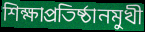
শিক্ষাপ্রতিষ্ঠানমুখী